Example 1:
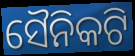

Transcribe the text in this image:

ସୈନିକଟି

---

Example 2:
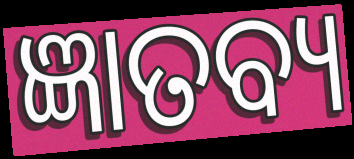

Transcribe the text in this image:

ଜ୍ଞାତବ୍ୟ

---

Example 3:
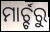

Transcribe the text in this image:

ମାର୍ଚ୍ଚରୁ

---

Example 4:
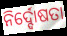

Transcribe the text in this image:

ନିର୍ଦ୍ଦୋଷତା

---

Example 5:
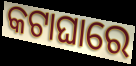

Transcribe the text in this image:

କଟାଘାରେ